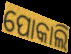
ପୋକାଲି